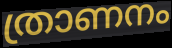
ത്രാണനം